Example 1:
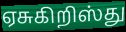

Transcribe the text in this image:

ஏசுகிறிஸ்து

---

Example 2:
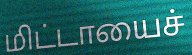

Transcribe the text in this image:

மிட்டாயைச்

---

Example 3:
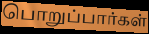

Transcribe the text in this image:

பொறுப்பார்கள்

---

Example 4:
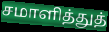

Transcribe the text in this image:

சமாளித்துத்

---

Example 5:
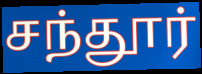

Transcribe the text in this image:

சந்தூர்